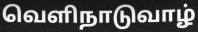
வெளிநாடுவாழ்